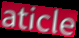
aticle